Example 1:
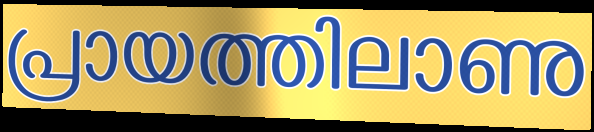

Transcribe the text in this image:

പ്രായത്തിലാണു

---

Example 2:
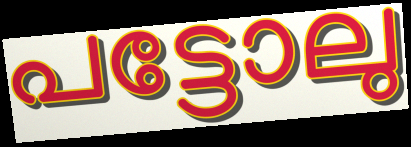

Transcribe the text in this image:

പട്ടോലു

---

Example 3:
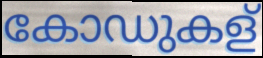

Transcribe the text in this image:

കോഡുകള്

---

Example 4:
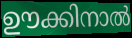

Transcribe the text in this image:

ഊക്കിനാൽ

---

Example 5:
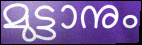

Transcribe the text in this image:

മുട്ടാനും